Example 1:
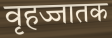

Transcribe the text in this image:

वृहज्जातक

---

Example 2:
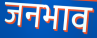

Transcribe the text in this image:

जनभाव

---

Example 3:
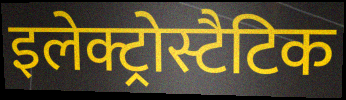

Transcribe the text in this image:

इलेक्ट्रोस्टैटिक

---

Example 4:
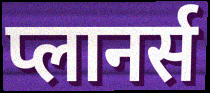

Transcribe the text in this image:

प्लानर्स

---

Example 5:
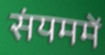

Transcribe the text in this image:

संयममें